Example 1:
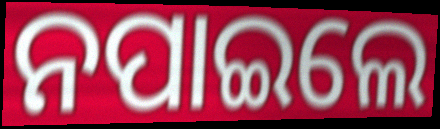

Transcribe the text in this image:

ନପାଇଲେ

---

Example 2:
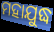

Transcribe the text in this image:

ମହାଯୁଦ୍ଧ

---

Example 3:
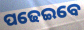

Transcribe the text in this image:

ପଢେଇବେ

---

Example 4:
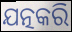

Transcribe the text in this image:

ଯତ୍ନକରି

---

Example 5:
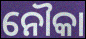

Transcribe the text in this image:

ନୌକା